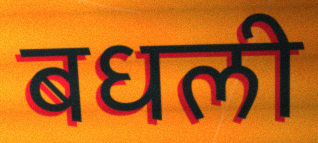
बधली